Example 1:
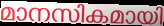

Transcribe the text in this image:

മാനസികമായി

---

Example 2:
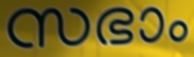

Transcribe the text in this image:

സഭാം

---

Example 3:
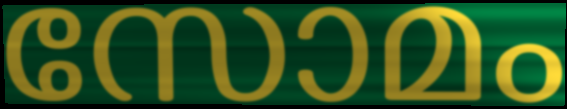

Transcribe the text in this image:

സോമം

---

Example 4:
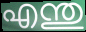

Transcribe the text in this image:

എന്തു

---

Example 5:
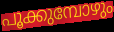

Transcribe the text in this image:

പൂക്കുമ്പോഴും